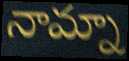
నామ్నా